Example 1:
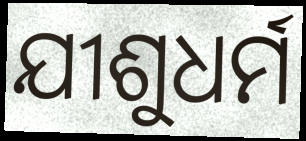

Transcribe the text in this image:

ଯୀଶୁଧର୍ମ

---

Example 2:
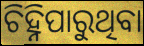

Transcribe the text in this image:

ଚିହ୍ନିପାରୁଥିବା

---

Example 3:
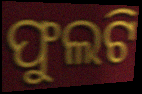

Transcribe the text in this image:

ଫୁଲଟି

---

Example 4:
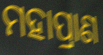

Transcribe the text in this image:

ମହାପ୍ରାଣ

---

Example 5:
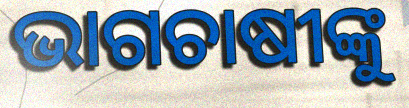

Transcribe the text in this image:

ଭାଗଚାଷୀଙ୍କୁ